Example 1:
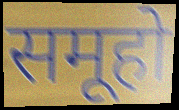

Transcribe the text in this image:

समूहो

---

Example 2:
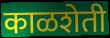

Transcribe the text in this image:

काळशेती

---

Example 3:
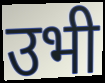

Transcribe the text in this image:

उभी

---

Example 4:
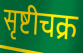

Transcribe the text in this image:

सृष्टीचक्र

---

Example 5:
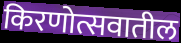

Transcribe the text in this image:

किरणोत्सवातील